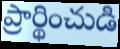
ప్రార్థించుడి